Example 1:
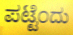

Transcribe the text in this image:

ಪಟ್ಟೆಂದು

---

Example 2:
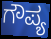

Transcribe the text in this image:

ಗೌಪ್ಯ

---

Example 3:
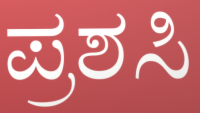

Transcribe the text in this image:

ಪ್ರಶಸಿ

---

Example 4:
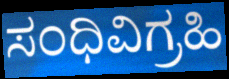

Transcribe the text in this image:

ಸಂಧಿವಿಗ್ರಹಿ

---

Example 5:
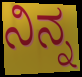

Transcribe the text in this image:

ನಿನ್ನ